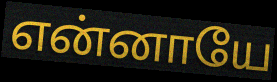
என்னாயே